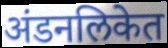
अंडनलिकेत